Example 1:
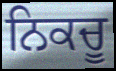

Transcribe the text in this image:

ਨਿਕਚੂ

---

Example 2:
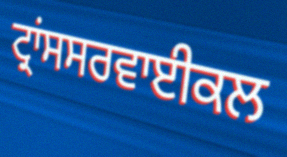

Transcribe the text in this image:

ਟ੍ਰਾਂਸਸਰਵਾਈਕਲ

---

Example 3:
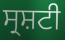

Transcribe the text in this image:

ਸ੍ਰਸ਼ਟੀ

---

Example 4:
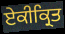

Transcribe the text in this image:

ਏਕੀਕ੍ਰਿਤ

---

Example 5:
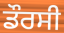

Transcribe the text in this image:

ਡੌਰਸੀ